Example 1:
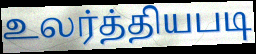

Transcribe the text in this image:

உலர்த்தியபடி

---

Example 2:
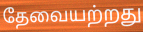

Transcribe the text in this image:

தேவையற்றது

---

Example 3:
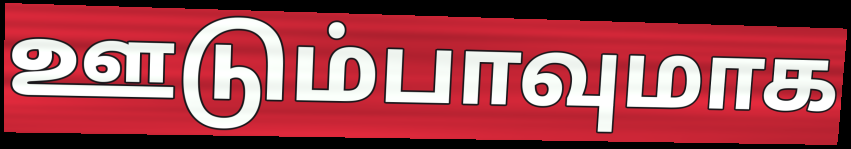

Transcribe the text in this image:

ஊடும்பாவுமாக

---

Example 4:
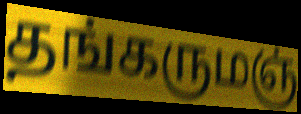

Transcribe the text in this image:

தங்கருமஞ்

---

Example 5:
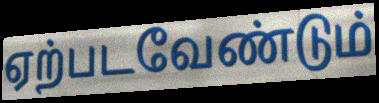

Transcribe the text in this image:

ஏற்படவேண்டும்